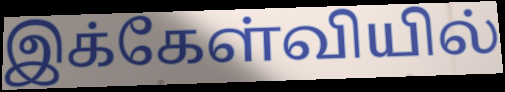
இக்கேள்வியில்